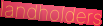
landholders